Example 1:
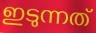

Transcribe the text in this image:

ഇടുന്നത്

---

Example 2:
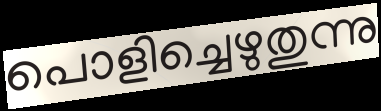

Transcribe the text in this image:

പൊളിച്ചെഴുതുന്നു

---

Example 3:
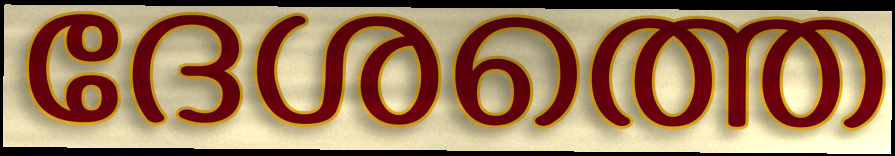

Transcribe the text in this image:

ദേശത്തെ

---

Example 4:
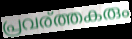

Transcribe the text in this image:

പ്രവര്ത്തകരും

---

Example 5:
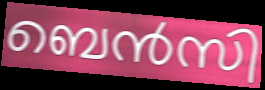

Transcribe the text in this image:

ബെൻസി